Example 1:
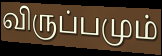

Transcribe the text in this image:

விருப்பமும்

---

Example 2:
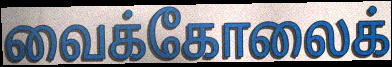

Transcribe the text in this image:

வைக்கோலைக்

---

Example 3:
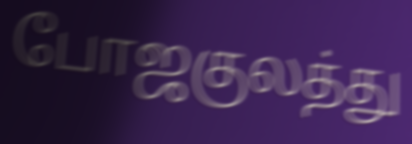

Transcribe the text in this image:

போஜகுலத்து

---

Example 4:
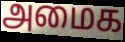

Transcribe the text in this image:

அமைக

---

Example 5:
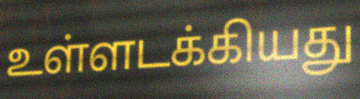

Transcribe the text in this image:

உள்ளடக்கியது